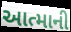
આત્માની